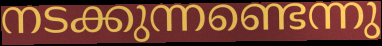
നടക്കുന്നണ്ടെന്നു